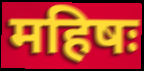
महिषः